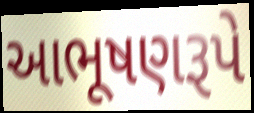
આભૂષણરૂપે